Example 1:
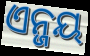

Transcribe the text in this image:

ଏନ୍ଜୟ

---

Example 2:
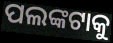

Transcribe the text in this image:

ପଲଙ୍କଟାକୁ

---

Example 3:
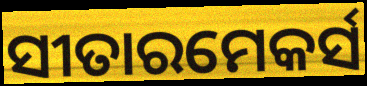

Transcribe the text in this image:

ସୀତାରମେକର୍ସ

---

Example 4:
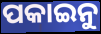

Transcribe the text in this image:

ପକାଇନୁ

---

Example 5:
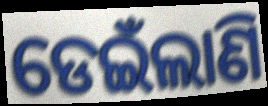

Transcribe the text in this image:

ଡେଇଁଲାଣି